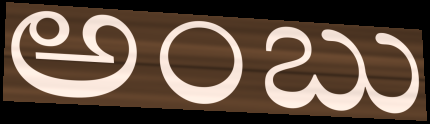
అంబు